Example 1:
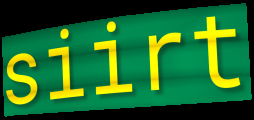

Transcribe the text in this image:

siirt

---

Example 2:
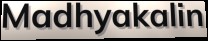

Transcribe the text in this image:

Madhyakalin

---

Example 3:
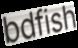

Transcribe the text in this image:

bdfish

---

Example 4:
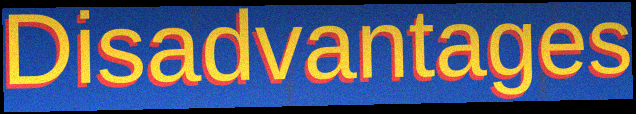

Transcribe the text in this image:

Disadvantages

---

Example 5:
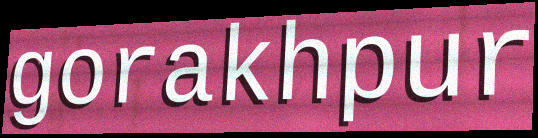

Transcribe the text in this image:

gorakhpur